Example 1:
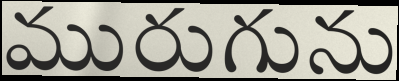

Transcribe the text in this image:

మురుగును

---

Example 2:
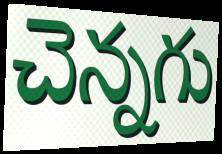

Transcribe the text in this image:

చెన్నగు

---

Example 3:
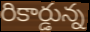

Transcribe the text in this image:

రికార్డున్న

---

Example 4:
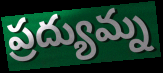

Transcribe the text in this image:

ప్రద్యుమ్న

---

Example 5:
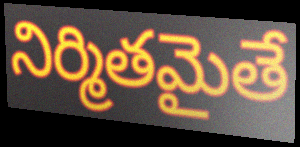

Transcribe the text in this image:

నిర్మితమైతే